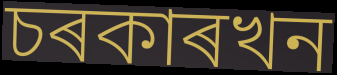
চৰকাৰখন